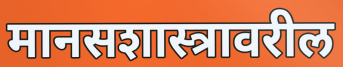
मानसशास्त्रावरील